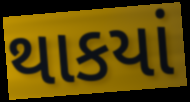
થાકયાં